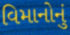
વિમાનોનું